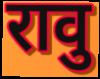
रावु